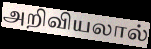
அறிவியலால்